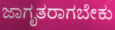
ಜಾಗೃತರಾಗಬೇಕು